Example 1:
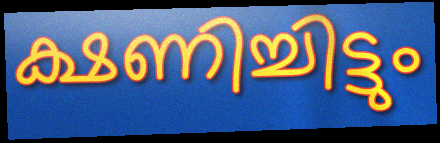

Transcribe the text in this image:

ക്ഷണിച്ചിട്ടും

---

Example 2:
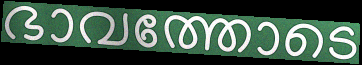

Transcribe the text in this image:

ഭാവത്തോടെ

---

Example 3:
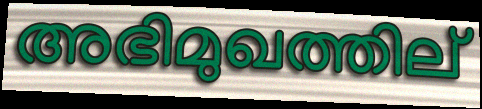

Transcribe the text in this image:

അഭിമുഖത്തില്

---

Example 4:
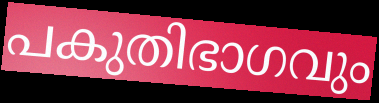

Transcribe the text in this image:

പകുതിഭാഗവും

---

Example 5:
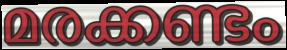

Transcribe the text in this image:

മരക്കണ്ടം